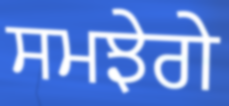
ਸਮਝੇਗੇ